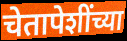
चेतापेशींच्या